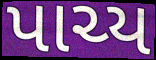
પાચ્ય